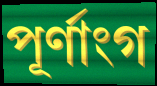
পূৰ্ণাংগ